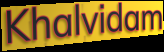
Khalvidam